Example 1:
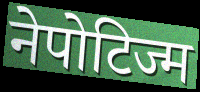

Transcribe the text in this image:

नेपोटिज्म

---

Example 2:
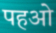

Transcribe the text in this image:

पहओ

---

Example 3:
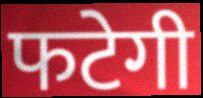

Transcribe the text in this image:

फटेगी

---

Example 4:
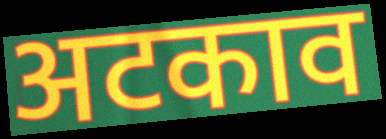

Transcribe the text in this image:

अटकाव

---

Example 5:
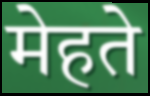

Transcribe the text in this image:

मेहते